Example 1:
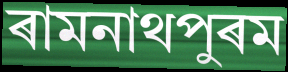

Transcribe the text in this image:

ৰামনাথপুৰম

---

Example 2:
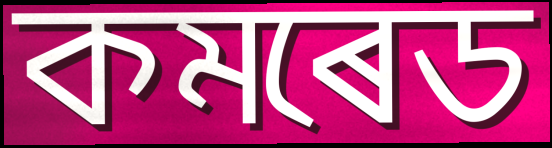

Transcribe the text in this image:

কমৰেড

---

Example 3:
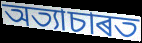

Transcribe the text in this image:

অত্যাচাৰত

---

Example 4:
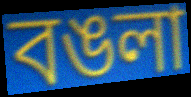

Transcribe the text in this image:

বঙলা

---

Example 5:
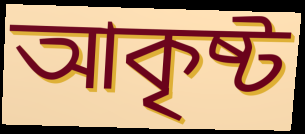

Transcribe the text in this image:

আকৃষ্ট